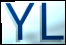
YL